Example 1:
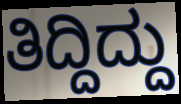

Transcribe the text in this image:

ತಿದ್ದಿದ್ದು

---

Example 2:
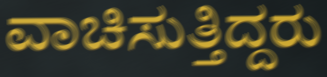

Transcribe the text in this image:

ವಾಚಿಸುತ್ತಿದ್ದರು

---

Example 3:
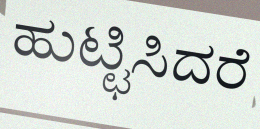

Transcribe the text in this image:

ಹುಟ್ಟಿಸಿದರೆ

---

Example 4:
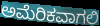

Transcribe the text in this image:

ಅಮೆರಿಕವಾಗಲಿ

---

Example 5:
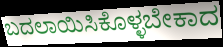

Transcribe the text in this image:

ಬದಲಾಯಿಸಿಕೊಳ್ಳಬೇಕಾದ